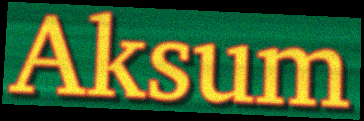
Aksum